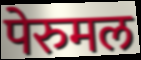
पेरुमल